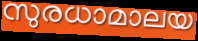
സുരധാമാലയ